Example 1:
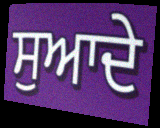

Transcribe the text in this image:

ਸੁਆਦੇ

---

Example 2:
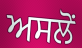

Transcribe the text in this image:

ਅਸਲੋਂ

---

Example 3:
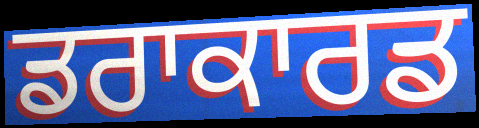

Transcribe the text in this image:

ਡਰਾਕਾਰਡ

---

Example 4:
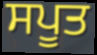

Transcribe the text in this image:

ਸਪੂਤ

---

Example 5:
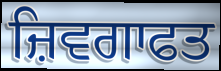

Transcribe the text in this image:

ਜ਼ਿਵਗਾਫਤ